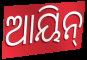
ଆୟିନ୍